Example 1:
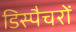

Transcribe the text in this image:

डिस्पैचरों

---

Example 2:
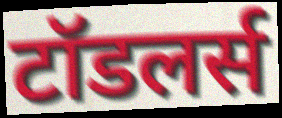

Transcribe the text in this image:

टॉडलर्स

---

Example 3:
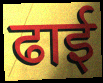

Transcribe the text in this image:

ढाई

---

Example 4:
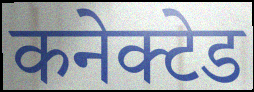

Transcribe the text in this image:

कनेक्टेड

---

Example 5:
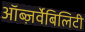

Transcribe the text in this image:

ऑब्ज़र्वेबिलिटी